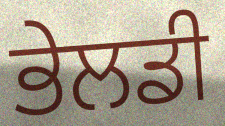
ਭੇਲਡੀ